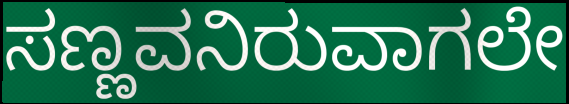
ಸಣ್ಣವನಿರುವಾಗಲೇ